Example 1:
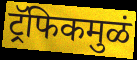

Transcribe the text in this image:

ट्रॅफिकमुळं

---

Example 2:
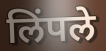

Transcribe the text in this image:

लिंपले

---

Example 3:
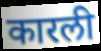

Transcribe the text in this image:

कारली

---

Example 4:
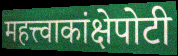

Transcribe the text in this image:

महत्त्वाकांक्षेपोटी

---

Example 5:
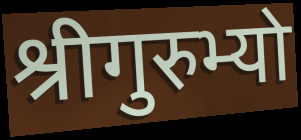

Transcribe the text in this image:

श्रीगुरुभ्यो